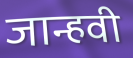
जान्हवी